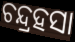
ଚନ୍ଦ୍ରହସା